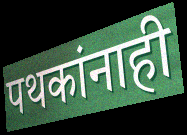
पथकांनाही